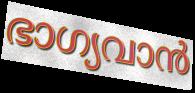
ഭാഗ്യവാൻ